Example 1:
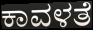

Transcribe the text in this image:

ಕಾವಳತೆ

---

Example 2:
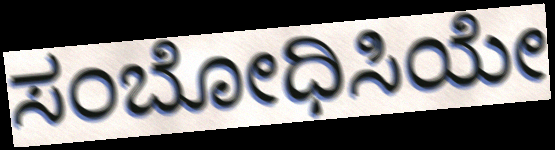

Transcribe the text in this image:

ಸಂಬೋಧಿಸಿಯೇ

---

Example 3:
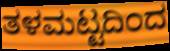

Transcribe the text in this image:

ತಳಮಟ್ಟದಿಂದ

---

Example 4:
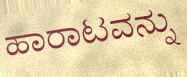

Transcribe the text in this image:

ಹಾರಾಟವನ್ನು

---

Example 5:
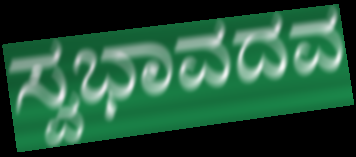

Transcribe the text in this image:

ಸ್ವಭಾವದವ